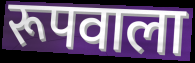
रूपवाला